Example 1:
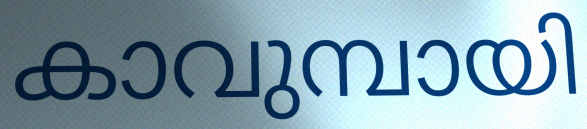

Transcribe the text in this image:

കാവുമ്പായി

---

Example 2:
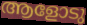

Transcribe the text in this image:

ആളോടു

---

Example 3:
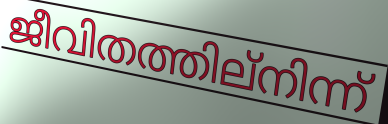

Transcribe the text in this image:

ജീവിതത്തില്നിന്ന്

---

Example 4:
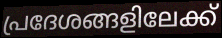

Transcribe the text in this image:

പ്രദേശങ്ങളിലേക്ക്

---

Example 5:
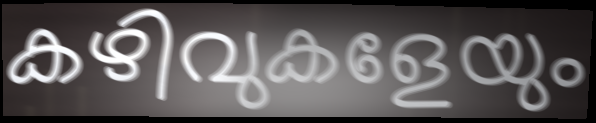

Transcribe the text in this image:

കഴിവുകളേയും